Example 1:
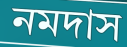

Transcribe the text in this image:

নমদাস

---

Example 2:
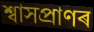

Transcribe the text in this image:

শ্বাসপ্ৰাণৰ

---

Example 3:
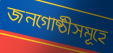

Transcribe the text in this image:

জনগোষ্ঠীসমূহে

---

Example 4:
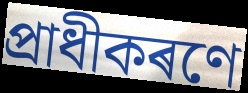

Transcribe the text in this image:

প্ৰাধীকৰণে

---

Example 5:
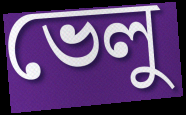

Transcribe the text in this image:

ভেলু